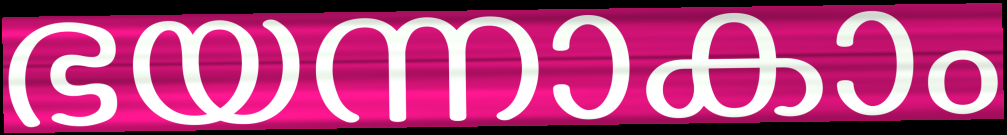
ഭയന്നാകാം